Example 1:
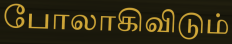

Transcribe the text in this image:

போலாகிவிடும்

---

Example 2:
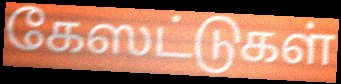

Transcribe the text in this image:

கேஸட்டுகள்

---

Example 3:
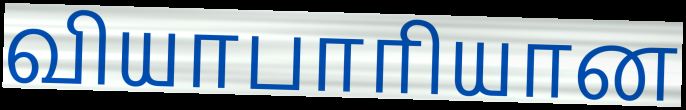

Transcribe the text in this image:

வியாபாரியான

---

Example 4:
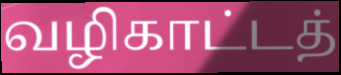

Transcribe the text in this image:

வழிகாட்டத்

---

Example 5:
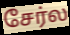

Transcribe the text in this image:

சேர்ல